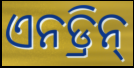
ଏନଡ୍ରିନ୍